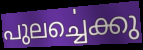
പുലൎച്ചെക്കു